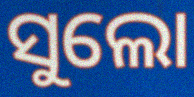
ସୁଲୋ